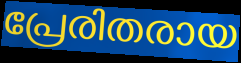
പ്രേരിതരായ